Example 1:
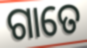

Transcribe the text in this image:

ଗାତେ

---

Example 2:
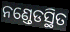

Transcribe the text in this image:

ନଣ୍ଡେଡସ୍ଥିତ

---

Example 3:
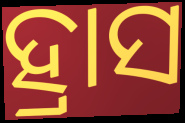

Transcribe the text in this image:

ହ୍ରାସ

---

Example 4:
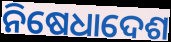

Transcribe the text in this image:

ନିଷେଧାଦେଶ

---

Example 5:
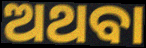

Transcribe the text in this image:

ଅଥବା